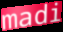
madi